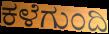
ಕಳೆಗುಂದಿ